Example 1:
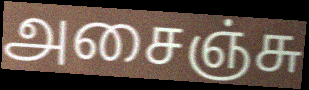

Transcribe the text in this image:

அசைஞ்சு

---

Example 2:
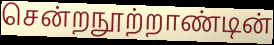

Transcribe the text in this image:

சென்றநூற்றாண்டின்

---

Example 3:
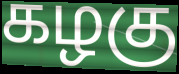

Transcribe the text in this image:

கழகு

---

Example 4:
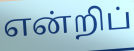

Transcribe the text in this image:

என்றிப்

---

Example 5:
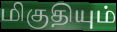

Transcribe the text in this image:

மிகுதியும்